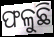
ଫଳୁଛି